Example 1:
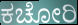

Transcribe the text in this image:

ಕಚೋರಿ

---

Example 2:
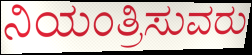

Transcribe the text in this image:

ನಿಯಂತ್ರಿಸುವರು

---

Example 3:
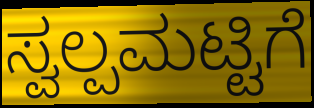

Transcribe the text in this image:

ಸ್ವಲ್ಪಮಟ್ಟಿಗೆ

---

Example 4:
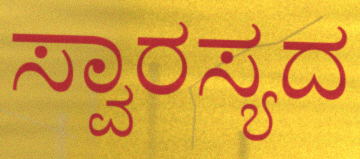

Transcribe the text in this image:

ಸ್ವಾರಸ್ಯದ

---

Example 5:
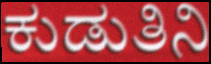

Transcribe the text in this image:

ಕುಡುತಿನಿ